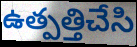
ఉత్పత్తిచేసి